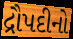
દ્રૌપદીનો